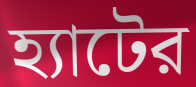
হ্যাটের